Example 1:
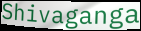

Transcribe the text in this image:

Shivaganga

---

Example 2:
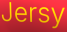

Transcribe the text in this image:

Jersy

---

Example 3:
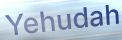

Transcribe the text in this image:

Yehudah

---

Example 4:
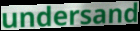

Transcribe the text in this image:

undersand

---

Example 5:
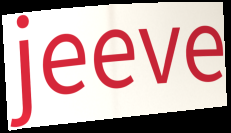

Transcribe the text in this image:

jeeve